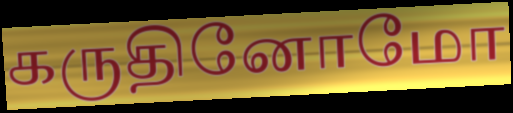
கருதினோமோ